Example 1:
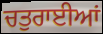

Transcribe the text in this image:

ਚਤੁਰਾਈਆਂ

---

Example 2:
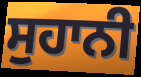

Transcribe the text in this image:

ਸੁਹਾਨੀ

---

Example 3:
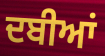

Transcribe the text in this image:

ਦਬੀਆਂ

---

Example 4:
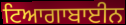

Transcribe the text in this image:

ਟਿਆਗਾਬਾਈਨ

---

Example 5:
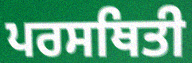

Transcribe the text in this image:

ਪਰਸਥਿਤੀ